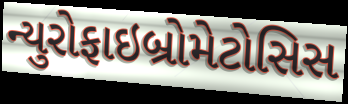
ન્યુરોફાઇબ્રોમેટોસિસ